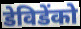
डेविडेंको